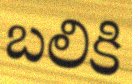
బలికి